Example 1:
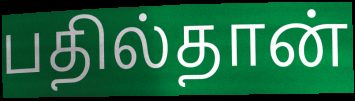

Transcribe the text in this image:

பதில்தான்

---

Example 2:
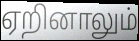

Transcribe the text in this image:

ஏறினாலும்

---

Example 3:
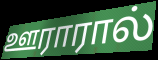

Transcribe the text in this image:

ஊராரால்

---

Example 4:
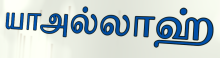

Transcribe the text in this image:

யாஅல்லாஹ்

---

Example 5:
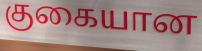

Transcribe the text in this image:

குகையான